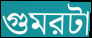
গুমরটা